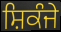
ਸ਼ਿਕੰਜੇ